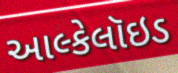
આલ્કેલૉઇડ